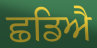
ਛਡਿਐ